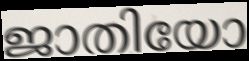
ജാതിയോ